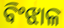
ବିଂଝାଳ